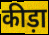
कीड़ा